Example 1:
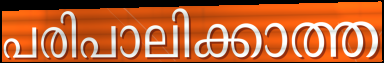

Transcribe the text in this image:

പരിപാലിക്കാത്ത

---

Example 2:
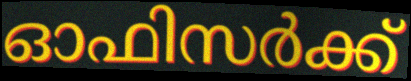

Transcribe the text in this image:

ഓഫിസർക്ക്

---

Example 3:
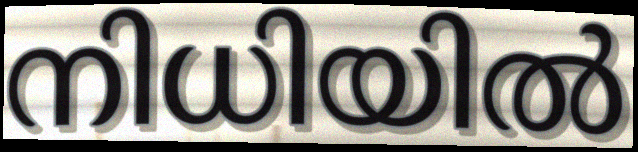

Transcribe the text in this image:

നിധിയിൽ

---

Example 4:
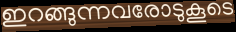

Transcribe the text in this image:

ഇറങ്ങുന്നവരോടുകൂടെ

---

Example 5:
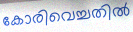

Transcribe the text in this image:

കോരിവെച്ചതിൽ